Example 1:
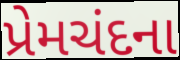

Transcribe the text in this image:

પ્રેમચંદના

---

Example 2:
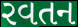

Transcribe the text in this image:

રવતન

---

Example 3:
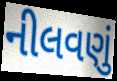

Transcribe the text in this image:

નીલવણું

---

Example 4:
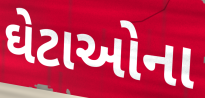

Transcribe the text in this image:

ઘેટાઓના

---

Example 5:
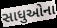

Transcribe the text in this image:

સાધુઓના